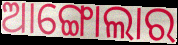
ଆଙ୍ଗୋଲାର